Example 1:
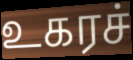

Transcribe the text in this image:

உகரச்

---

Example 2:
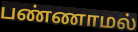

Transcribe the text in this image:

பண்ணாமல்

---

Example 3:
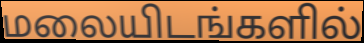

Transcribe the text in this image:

மலையிடங்களில்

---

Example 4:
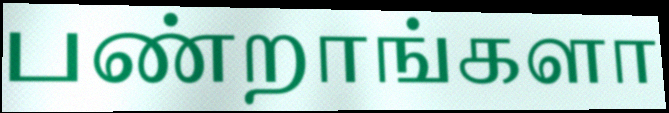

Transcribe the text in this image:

பண்றாங்களா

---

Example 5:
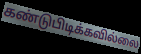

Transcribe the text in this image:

கண்டுபிடிக்கவில்லை